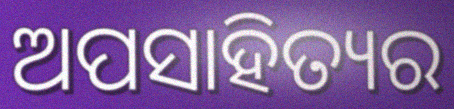
ଅପସାହିତ୍ୟର